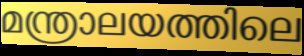
മന്ത്രാലയത്തിലെ